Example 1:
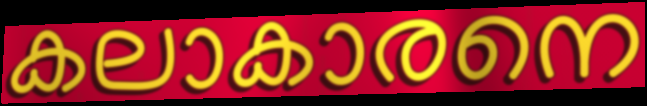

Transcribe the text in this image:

കലാകാരനെ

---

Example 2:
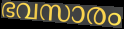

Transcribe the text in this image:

ഭവസാരം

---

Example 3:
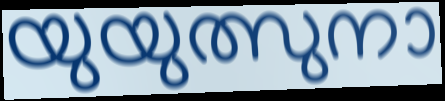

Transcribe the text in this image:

യുയുത്സുനാ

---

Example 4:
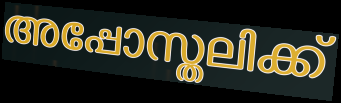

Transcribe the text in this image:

അപ്പോസ്തലിക്ക്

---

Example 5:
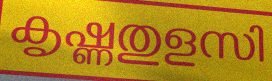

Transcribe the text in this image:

കൃഷ്ണതുളസി